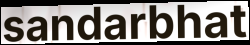
sandarbhat